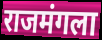
राजमंगला